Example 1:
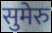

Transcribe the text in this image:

सुमेरु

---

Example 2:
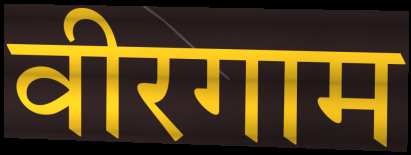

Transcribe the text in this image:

वीरगाम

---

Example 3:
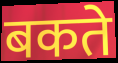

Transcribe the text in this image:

बकते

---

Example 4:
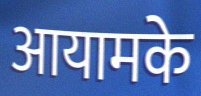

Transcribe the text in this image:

आयामके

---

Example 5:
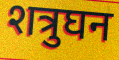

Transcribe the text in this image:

शत्रुघन